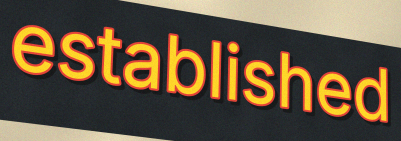
established